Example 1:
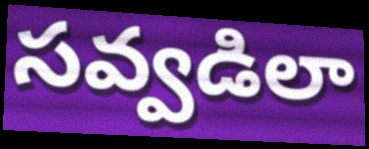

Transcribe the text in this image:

సవ్వడిలా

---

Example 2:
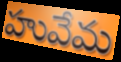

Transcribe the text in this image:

హువేమ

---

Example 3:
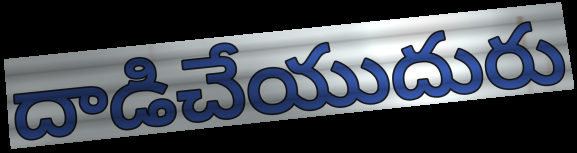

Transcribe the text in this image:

దాడిచేయుదురు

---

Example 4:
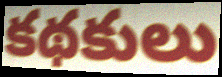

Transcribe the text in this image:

కథకులు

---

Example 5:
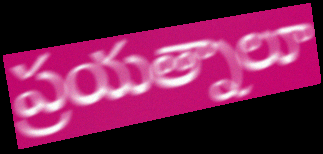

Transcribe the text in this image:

ప్రయత్నాలూ